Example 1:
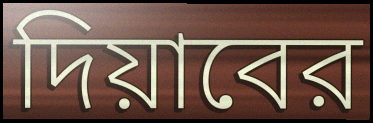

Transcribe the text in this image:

দিয়াবের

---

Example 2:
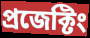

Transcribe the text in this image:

প্রজেক্টিং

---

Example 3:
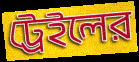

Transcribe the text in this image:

ট্রেইলের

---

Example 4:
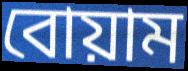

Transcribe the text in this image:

বোয়াম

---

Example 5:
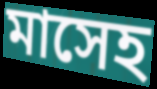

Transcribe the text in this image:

মাসেহ